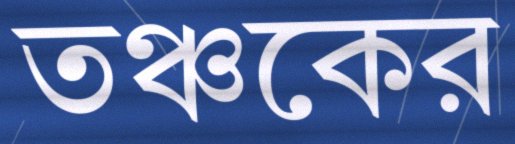
তঞ্চকের